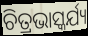
ଚିତ୍ରଭାସ୍କର୍ଯ୍ୟ